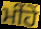
ਮੀਂਹੇਂ